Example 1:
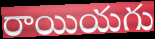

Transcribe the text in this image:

రాయియగు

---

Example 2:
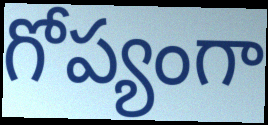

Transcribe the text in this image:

గోప్యంగా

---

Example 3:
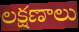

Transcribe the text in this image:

లక్షణాలు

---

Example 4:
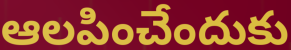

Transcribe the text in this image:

ఆలపించేందుకు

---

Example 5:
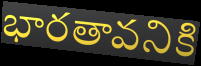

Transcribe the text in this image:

భారతావనికి